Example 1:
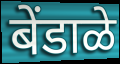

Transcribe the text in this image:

बेंडाळे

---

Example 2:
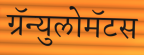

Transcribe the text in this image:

ग्रॅन्युलोमॅटस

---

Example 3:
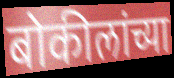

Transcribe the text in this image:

बोकीलांच्या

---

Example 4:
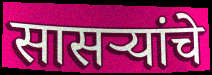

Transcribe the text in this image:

सासर्‍यांचे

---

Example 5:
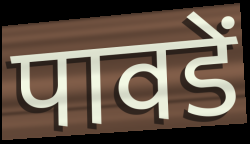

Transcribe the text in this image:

पावडें